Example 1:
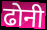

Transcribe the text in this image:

ढोनी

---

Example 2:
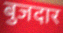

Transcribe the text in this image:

बुजदार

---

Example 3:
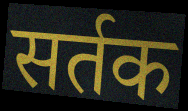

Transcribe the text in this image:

सर्तक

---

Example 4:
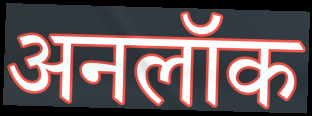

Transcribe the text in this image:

अनलॉक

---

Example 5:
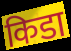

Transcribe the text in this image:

किडा